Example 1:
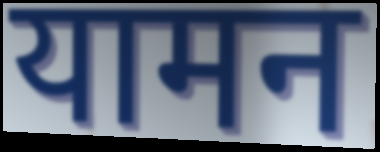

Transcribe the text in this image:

यामन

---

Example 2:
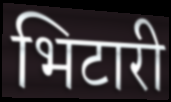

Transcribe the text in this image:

भिटारी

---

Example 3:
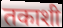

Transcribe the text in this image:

तकाशी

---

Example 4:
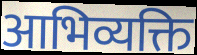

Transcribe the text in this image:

आभिव्यक्ति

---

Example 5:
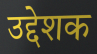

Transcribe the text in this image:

उद्देशक